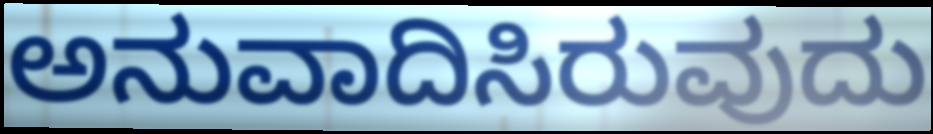
ಅನುವಾದಿಸಿರುವುದು